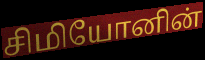
சிமியோனின்